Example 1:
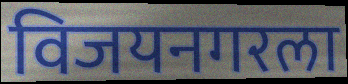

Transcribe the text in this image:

विजयनगरला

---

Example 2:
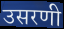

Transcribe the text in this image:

उसरणी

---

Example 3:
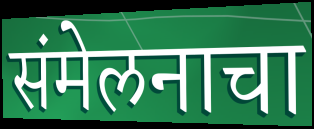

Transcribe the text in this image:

संमेलनाचा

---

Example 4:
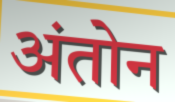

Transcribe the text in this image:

अंतोन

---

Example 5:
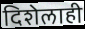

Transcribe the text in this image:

दिशेलाही